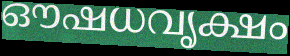
ഔഷധവൃക്ഷം